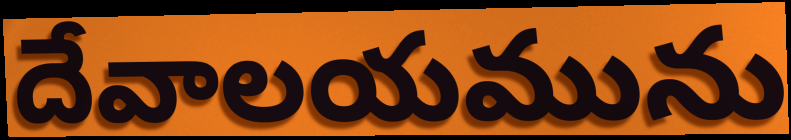
దేవాలయమును